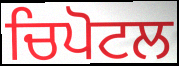
ਚਿਪੋਟਲ